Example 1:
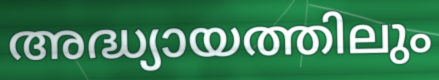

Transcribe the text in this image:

അദ്ധ്യായത്തിലും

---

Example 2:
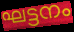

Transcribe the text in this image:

ഘട്ടനം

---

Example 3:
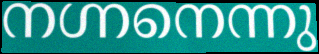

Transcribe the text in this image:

നഗ്നനെന്നു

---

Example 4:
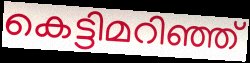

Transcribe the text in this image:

കെട്ടിമറിഞ്ഞ്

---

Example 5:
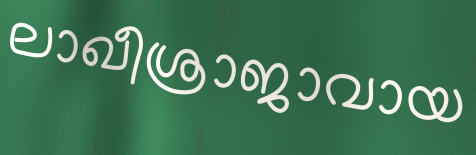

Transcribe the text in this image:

ലാഖീശ്രാജാവായ